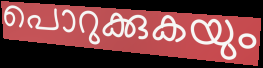
പൊറുക്കുകയും